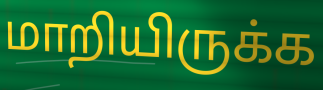
மாறியிருக்க